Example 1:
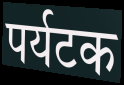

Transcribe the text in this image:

पर्यटक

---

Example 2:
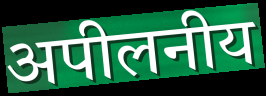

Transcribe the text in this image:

अपीलनीय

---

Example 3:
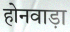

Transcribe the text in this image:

होनवाड़ा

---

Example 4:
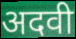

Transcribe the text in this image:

अदवी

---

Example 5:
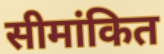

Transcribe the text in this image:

सीमांकित